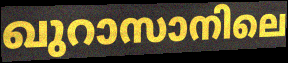
ഖുറാസാനിലെ